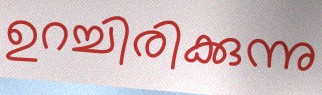
ഉറച്ചിരിക്കുന്നു